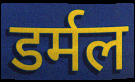
डर्मल